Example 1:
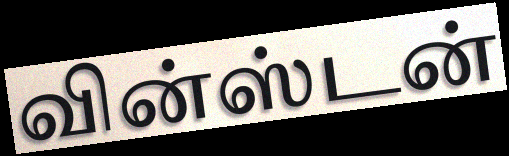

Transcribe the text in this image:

வின்ஸ்டன்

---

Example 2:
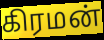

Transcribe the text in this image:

கிரமன்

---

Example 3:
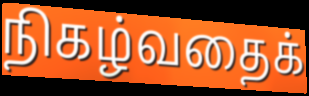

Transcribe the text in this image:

நிகழ்வதைக்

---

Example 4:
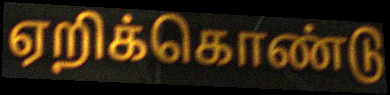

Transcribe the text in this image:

ஏறிக்கொண்டு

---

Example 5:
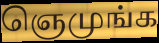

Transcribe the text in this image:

ஞெமுங்க